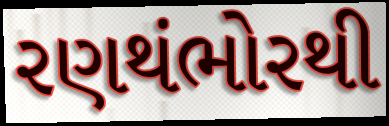
રણથંભોરથી